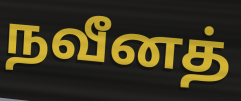
நவீனத்